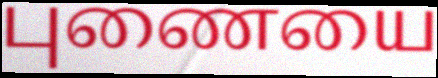
புணையை